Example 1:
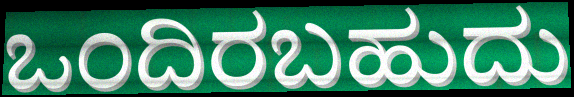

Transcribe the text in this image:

ಒಂದಿರಬಹುದು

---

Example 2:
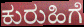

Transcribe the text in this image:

ಕುರುಹಿಗೆ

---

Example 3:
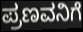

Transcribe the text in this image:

ಪ್ರಣವನಿಗೆ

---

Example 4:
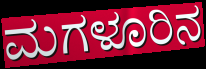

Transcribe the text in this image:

ಮಗಳೂರಿನ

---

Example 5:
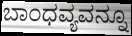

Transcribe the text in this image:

ಬಾಂಧವ್ಯವನ್ನೂ